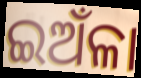
ଇଅଁଳା